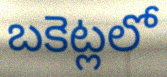
బకెట్లలో